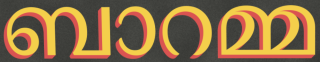
ബാറമ്മ